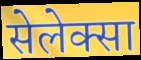
सेलेक्सा